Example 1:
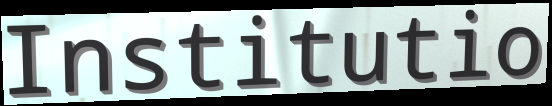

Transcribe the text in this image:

Institutio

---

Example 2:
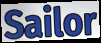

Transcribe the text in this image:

Sailor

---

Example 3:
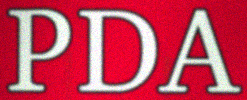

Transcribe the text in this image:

PDA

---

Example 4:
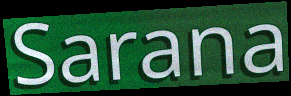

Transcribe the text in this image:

Sarana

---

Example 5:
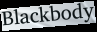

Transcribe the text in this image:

Blackbody